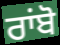
ਰਾਂਬੋ